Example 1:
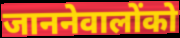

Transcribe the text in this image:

जाननेवालोंको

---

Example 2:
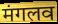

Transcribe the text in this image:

मंगलव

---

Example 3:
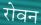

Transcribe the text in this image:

रोवन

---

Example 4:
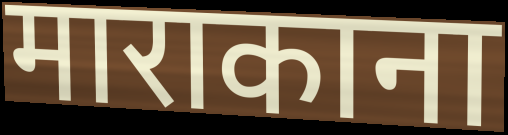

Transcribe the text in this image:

माराकाना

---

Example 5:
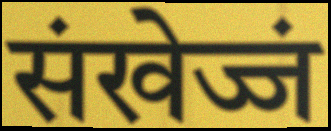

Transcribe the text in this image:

संखेज्जं